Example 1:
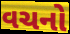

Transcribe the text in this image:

વચનો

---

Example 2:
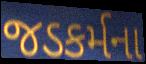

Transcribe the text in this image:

જડકર્મના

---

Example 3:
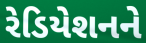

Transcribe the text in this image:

રેડિયેશનને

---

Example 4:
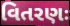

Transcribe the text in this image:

વિતરણઃ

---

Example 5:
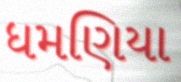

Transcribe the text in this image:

ધમણિયા